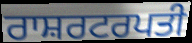
ਰਾਸ਼ਰਟਰਪਤੀ